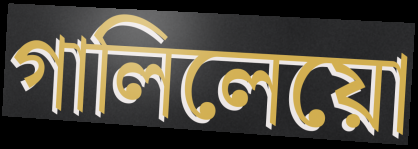
গালিলেয়ো